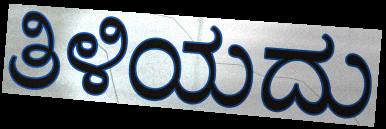
ತಿಳಿಯದು